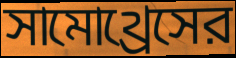
সামোথ্রেসের